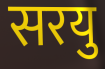
सरयु